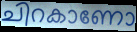
ചിറകാണോ